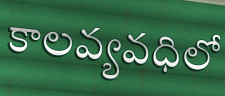
కాలవ్యవధిలో